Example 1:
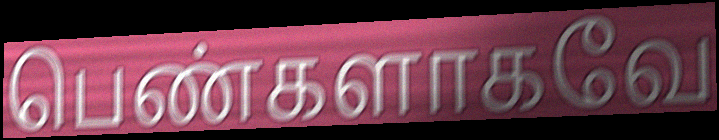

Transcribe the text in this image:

பெண்களாகவே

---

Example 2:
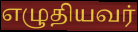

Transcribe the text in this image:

எழுதியவர்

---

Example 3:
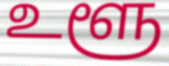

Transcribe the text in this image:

உளூ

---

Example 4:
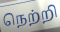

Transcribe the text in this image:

நெற்றி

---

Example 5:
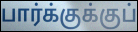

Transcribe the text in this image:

பார்க்குக்குப்